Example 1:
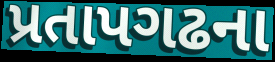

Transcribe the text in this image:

પ્રતાપગઢના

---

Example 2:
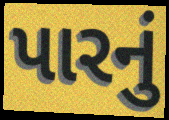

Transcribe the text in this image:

પારનું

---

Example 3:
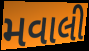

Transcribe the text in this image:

મવાલી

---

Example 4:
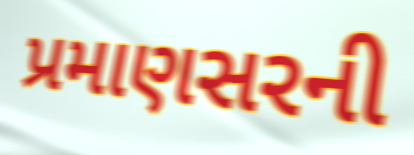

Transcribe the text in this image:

પ્રમાણસરની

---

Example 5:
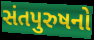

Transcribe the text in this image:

સંતપુરુષનો